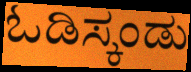
ಓಡಿಸ್ಕಂಡು